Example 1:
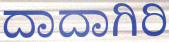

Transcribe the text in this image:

ದಾದಾಗಿರಿ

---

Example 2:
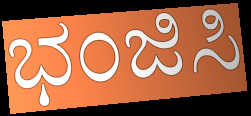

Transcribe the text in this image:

ಭಂಜಿಸಿ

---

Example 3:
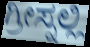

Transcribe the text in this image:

ಗ್ರೀಸ್ನಲ್ಲಿ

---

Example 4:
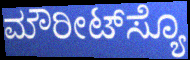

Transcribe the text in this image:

ಮೌರೀಟ್‌ಸ್ಯೊ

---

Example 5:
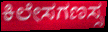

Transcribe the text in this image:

ಕಿಲೇಸಗಣಸ್ಸ